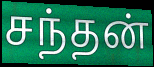
சந்தன்